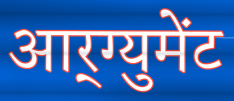
आर्ग्युमेंट